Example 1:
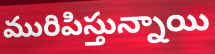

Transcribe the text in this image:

మురిపిస్తున్నాయి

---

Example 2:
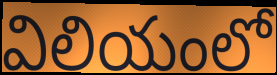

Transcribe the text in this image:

విలియంలో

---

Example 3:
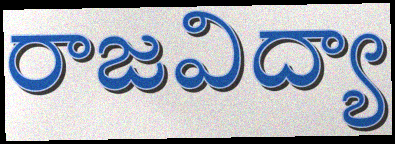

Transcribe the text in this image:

రాజవిద్యా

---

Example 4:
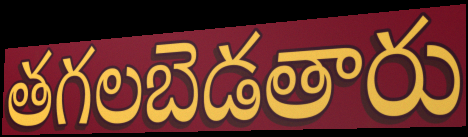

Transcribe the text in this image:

తగలబెడతారు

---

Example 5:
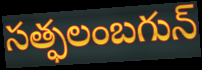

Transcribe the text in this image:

సత్ఫలంబగున్